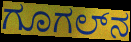
ಗೂಗಲ್‌ನ